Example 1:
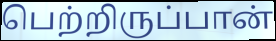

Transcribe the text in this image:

பெற்றிருப்பான்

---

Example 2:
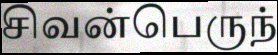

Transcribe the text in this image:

சிவன்பெருந்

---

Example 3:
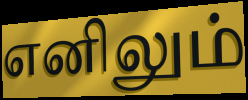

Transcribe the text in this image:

எனிலும்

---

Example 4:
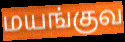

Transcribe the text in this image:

மயங்குவ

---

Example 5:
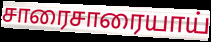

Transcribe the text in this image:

சாரைசாரையாய்